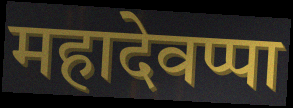
महादेवप्पा